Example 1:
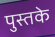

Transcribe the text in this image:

पुस्‍तके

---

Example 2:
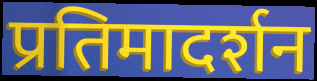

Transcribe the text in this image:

प्रतिमादर्शन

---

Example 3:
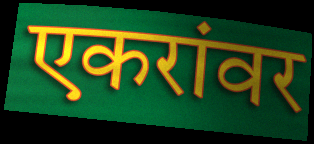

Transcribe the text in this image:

एकरांवर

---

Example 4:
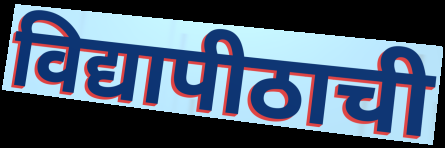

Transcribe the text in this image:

विद्यापीठाची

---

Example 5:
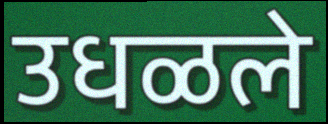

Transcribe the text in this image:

उधळले